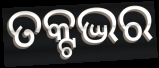
ତକ୍ଟଦ୍ଭର